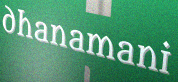
dhanamani